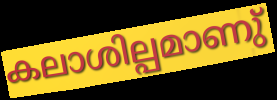
കലാശില്പമാണു്